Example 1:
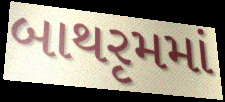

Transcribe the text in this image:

બાથરૃમમાં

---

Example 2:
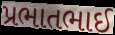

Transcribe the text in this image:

પ્રભાતભાઈ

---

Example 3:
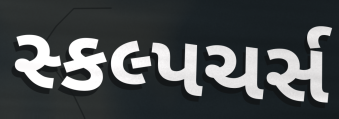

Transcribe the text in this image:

સ્કલ્પચર્સ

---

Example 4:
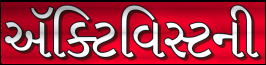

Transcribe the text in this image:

ઍક્ટિવિસ્ટની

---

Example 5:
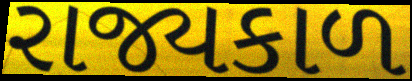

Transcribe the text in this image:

રાજ્યકાળ